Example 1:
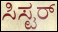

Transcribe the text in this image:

ಸಿಸ್ಟರ್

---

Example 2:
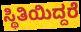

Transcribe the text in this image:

ಸ್ಥಿತಿಯಿದ್ದರೆ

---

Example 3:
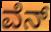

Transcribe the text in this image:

ವೆನ್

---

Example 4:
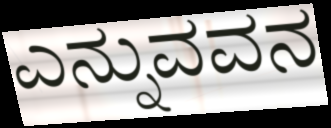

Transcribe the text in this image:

ಎನ್ನುವವನ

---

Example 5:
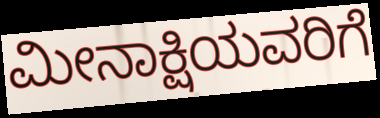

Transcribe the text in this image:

ಮೀನಾಕ್ಷಿಯವರಿಗೆ